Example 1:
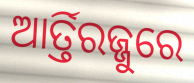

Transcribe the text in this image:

ଆର୍ତ୍ତିରଜ୍ଜୁରେ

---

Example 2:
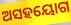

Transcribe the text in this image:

ଅସହୟୋଗ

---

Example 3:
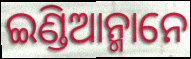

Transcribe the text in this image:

ଇଣ୍ଡିଆନ୍ମାନେ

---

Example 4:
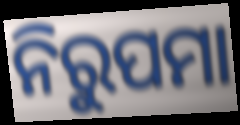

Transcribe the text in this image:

ନିରୁପମା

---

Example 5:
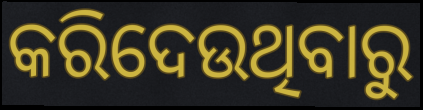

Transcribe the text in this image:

କରିଦେଉଥିବାରୁ